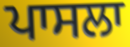
ਪਾਸਲਾ